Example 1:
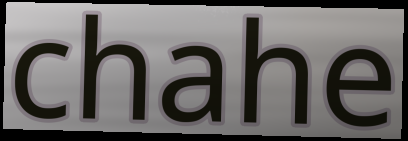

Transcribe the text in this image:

chahe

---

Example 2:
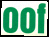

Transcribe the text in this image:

oof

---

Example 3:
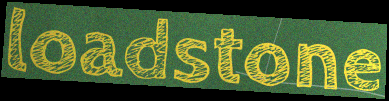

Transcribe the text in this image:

loadstone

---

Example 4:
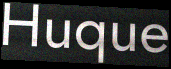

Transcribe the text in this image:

Huque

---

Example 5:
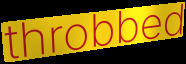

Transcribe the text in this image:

throbbed